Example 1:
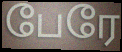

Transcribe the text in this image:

பேரே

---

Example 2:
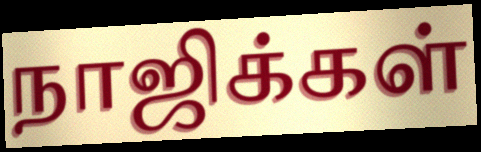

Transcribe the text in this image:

நாஜிக்கள்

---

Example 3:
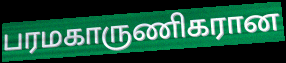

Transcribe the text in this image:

பரமகாருணிகரான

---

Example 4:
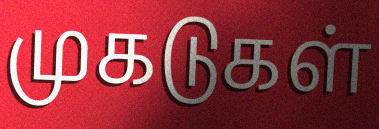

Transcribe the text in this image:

முகடுகள்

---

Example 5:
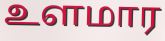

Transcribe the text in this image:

உளமார